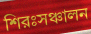
শিরঃসঞ্চালন